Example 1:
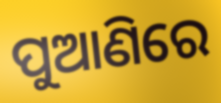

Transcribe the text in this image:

ପୁଆଣିରେ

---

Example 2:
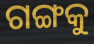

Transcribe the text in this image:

ଗଙ୍ଗକୁ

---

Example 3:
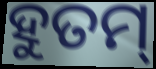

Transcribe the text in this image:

ହୁତମ୍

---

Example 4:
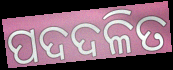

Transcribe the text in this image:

ପଦଦଳିତ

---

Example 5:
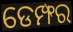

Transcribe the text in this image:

ଡେମ୍ଫର